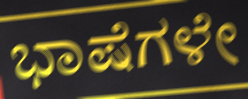
ಭಾಷೆಗಳೇ